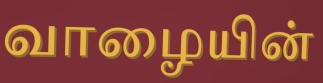
வாழையின்